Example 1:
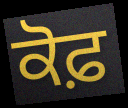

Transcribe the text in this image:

ਕੋਫ਼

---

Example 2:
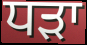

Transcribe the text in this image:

ਧੜਾ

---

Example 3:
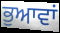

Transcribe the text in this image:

ਭੁਆਵਾਂ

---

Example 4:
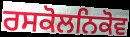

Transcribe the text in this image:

ਰਸਕੋਲਨਿਕੋਵ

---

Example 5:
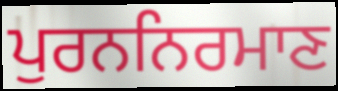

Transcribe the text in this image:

ਪੁਰਨਨਿਰਮਾਣ